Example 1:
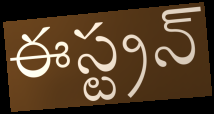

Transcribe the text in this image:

ఈస్ట్రన్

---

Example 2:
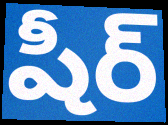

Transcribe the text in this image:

షీర్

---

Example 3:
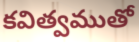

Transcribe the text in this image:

కవిత్వముతో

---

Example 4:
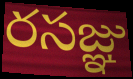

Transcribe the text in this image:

రసజ్ఞు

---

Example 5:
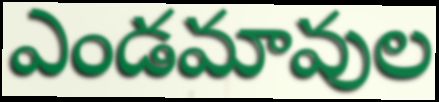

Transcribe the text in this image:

ఎండమావుల